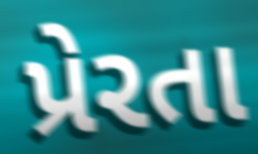
પ્રેરતા